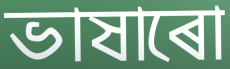
ভাষাৰো